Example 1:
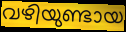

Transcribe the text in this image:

വഴിയുണ്ടായ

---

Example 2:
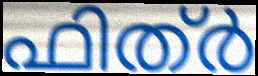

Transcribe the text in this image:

ഫിത്ർ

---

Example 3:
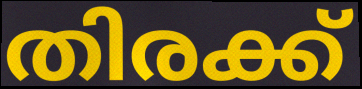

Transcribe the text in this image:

തിരക്ക്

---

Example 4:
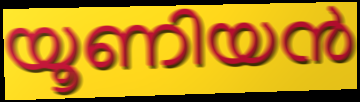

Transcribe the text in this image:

യൂണിയൻ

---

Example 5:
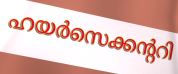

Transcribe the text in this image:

ഹയർസെക്കന്ററി